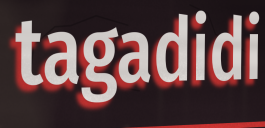
tagadidi